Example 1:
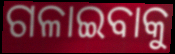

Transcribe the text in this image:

ଗଳାଇବାକୁ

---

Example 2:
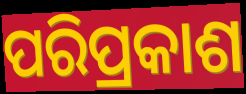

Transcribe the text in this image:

ପରିପ୍ରକାଶ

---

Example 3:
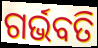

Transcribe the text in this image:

ଗର୍ଭବତି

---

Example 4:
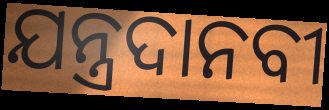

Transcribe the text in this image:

ଯନ୍ତ୍ରଦାନବୀ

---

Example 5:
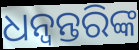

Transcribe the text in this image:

ଧନ୍ୱନ୍ତରିଙ୍କ